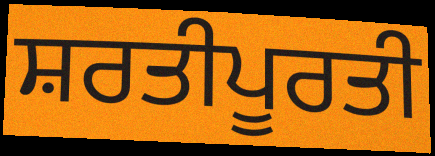
ਸ਼ਰਤੀਪੂਰਤੀ